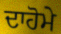
ਦਾਹੋਮੇ